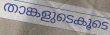
താങ്കളുടെകൂടെ